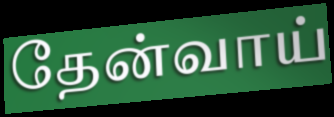
தேன்வாய்